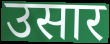
उसार